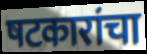
षटकारांचा